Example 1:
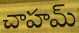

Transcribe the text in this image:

చాహమ్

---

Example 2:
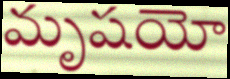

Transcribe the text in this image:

మృషయో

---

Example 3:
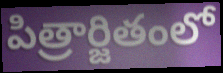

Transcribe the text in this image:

పిత్రార్జితంలో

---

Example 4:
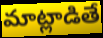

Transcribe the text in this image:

మాట్లాడితే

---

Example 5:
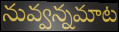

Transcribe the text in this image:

నువ్వన్నమాట